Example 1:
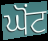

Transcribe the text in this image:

ਘੋਂਟ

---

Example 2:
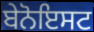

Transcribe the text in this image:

ਬੇਨੋਇਸਟ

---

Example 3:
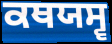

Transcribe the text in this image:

ਕਥਯਸ੍ਵ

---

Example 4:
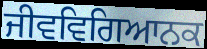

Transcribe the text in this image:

ਜੀਵਵਿਗਿਆਨਕ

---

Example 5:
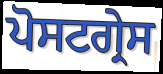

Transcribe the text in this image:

ਪੋਸਟਗ੍ਰੇਸ